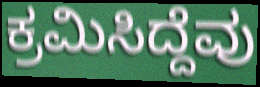
ಕ್ರಮಿಸಿದ್ದೆವು